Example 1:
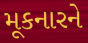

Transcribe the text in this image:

મૂકનારને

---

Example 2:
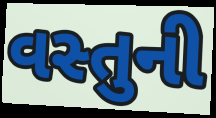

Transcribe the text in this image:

વસ્તુની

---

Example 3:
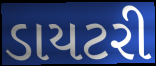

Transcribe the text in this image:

ડાયટરી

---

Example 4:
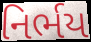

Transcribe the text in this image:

નિર્ભય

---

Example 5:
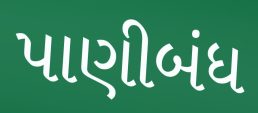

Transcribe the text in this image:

પાણીબંધ